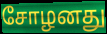
சோழனது